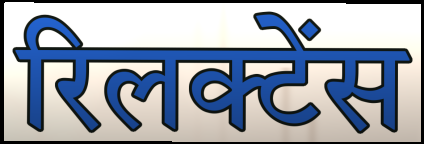
रिलक्टेंस